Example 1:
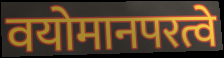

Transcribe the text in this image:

वयोमानपरत्वे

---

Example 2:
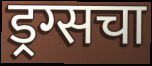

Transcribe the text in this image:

ड्रग्सचा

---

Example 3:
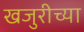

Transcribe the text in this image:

खजुरीच्या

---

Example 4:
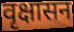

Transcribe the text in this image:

वृक्षासन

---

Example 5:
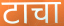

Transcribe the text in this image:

टाचा